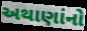
અથાણાંનો